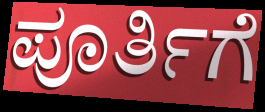
ಪೂರ್ತಿಗೆ